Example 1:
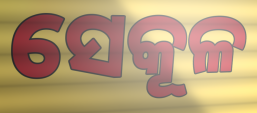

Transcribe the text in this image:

ସେକୂଳ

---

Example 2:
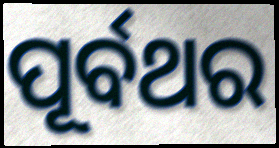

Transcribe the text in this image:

ପୂର୍ବଥର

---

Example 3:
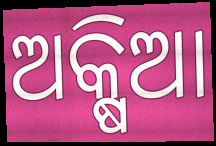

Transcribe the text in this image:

ଅକ୍ଷିଆ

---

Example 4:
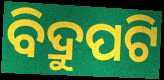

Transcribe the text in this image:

ବିଦ୍ରୁପଟି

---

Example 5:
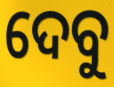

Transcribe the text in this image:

ଦେବୁ